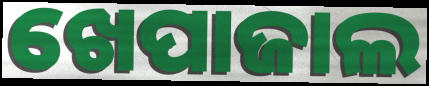
ଖେପାଜାଲ